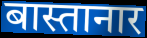
बास्तानार